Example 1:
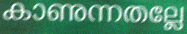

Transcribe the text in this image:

കാണുന്നതല്ലേ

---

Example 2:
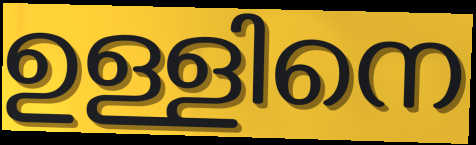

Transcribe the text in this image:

ഉള്ളിനെ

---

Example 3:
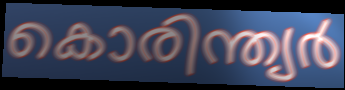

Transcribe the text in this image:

കൊരിന്ത്യർ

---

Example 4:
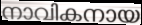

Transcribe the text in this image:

നാവികനായ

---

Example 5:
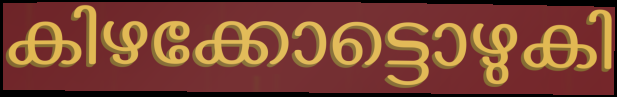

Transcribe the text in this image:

കിഴക്കോട്ടൊഴുകി